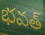
భవత్